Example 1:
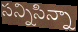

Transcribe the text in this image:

సన్నిసిన్నా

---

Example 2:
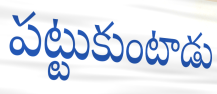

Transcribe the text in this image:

పట్టుకుంటాడు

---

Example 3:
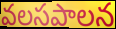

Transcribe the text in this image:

వలసపాలన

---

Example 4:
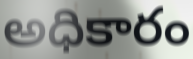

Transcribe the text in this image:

అధికారం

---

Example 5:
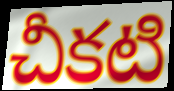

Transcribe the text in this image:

చీకటి